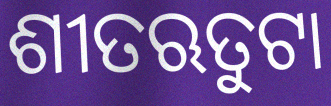
ଶୀତଋତୁଟା